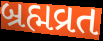
બ્રહ્મવ્રત